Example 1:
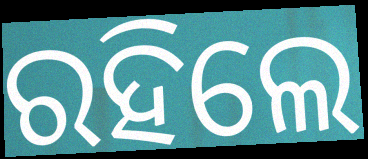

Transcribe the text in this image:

ରହିଲେ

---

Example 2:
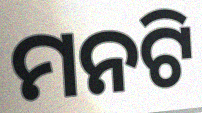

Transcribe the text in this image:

ମନଟି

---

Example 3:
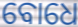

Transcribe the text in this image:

ବୋଧେ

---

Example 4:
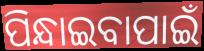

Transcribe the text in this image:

ପିନ୍ଧାଇବାପାଇଁ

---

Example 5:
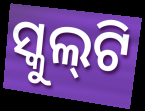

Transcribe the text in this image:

ସ୍କୁଲ୍‌ଟି